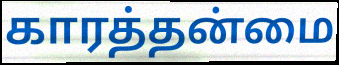
காரத்தன்மை